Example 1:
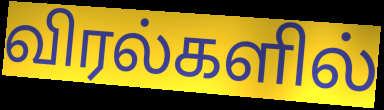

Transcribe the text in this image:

விரல்களில்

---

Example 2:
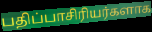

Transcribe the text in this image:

பதிப்பாசிரியர்களாக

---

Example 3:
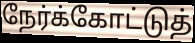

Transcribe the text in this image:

நேர்க்கோட்டுத்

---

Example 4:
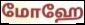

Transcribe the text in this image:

மோஹே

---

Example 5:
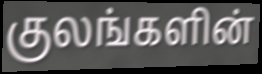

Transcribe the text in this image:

குலங்களின்